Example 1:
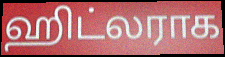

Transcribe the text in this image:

ஹிட்லராக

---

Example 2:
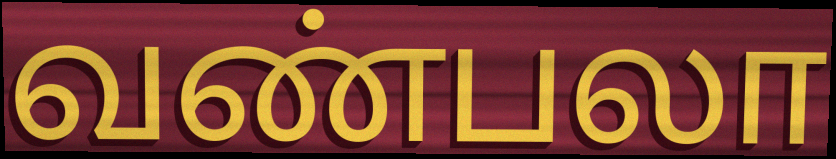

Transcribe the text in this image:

வண்பலா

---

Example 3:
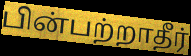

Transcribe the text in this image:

பின்பற்றாதீர்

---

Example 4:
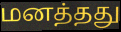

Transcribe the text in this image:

மனத்தது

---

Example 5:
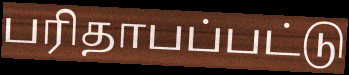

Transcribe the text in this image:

பரிதாபப்பட்டு